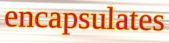
encapsulates